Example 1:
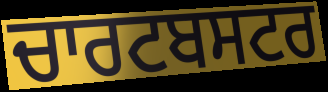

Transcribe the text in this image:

ਚਾਰਟਬਸਟਰ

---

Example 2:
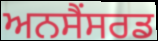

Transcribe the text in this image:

ਅਨਸੈਂਸਰਡ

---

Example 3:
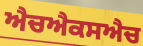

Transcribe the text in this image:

ਐਚਐਕਸਐਚ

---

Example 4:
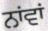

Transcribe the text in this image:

ਨਾਂਵਾਂ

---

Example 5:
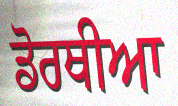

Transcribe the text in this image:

ਡੋਰਥੀਆ